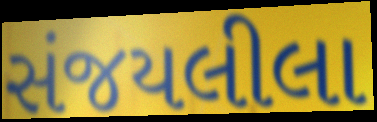
સંજયલીલા